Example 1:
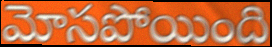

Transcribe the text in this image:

మోసపోయింది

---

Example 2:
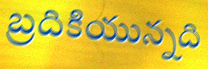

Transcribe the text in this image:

బ్రదికియున్నది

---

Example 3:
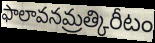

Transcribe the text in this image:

ఫాలావనమ్రత్కిరీటం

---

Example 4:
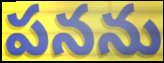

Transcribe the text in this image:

పనను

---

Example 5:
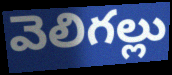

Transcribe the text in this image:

వెలిగల్లు